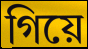
গিয়ে